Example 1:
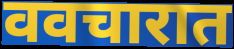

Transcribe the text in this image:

ववचारात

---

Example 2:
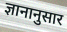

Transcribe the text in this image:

ज्ञानानुसार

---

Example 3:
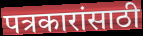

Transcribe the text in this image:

पत्रकारांसाठी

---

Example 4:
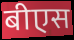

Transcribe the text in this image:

बीएस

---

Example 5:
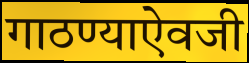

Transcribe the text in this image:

गाठण्याऐवजी